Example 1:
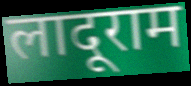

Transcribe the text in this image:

लादूराम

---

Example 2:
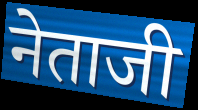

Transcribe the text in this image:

नेताजी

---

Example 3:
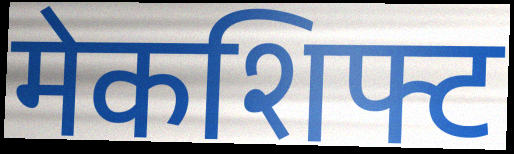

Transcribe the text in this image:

मेकशिफ्ट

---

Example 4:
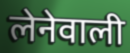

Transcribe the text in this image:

लेनेवाली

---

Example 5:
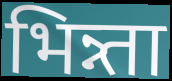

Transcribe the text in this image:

भिन्न्ता